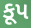
કૂપ